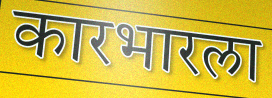
कारभारला